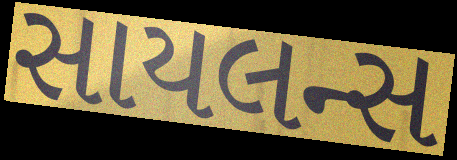
સાયલન્સ